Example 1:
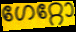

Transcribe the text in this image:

ഗേറ്റോ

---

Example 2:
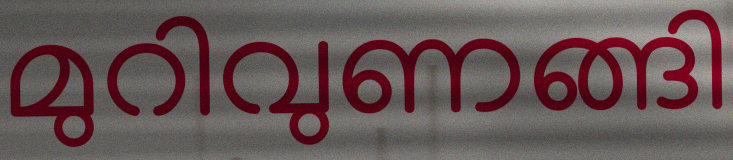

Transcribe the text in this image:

മുറിവുണങ്ങി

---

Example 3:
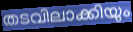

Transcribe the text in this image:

തടവിലാക്കിയും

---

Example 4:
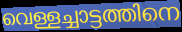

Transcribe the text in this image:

വെള്ളച്ചാട്ടത്തിനെ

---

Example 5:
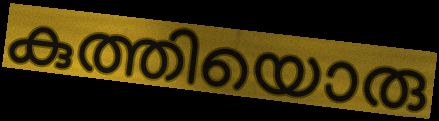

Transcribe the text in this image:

കുത്തിയൊരു